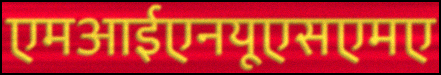
एमआईएनयूएसएमए